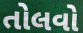
તોલવો